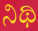
ನಿಥಿ